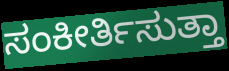
ಸಂಕೀರ್ತಿಸುತ್ತಾ